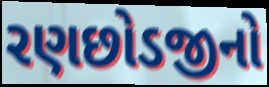
રણછોડજીનો